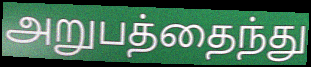
அறுபத்தைந்து